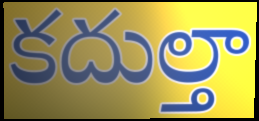
కదుల్తా